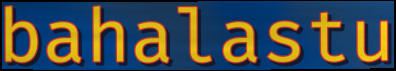
bahalastu